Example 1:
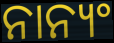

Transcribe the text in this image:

ନାନ୍ୟଂ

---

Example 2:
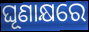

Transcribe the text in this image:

ଘୂଣାକ୍ଷରେ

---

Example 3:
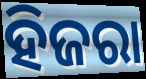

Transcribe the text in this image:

ହିଜରା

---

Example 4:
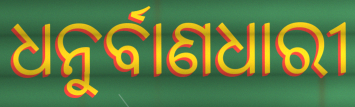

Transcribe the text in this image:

ଧନୁର୍ବାଣଧାରୀ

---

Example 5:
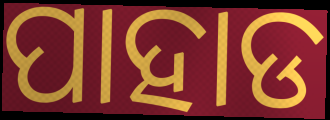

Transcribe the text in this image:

ପାହାଡ